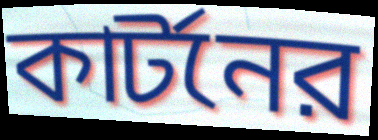
কার্টনের